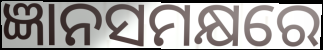
ଜ୍ଞାନସମକ୍ଷରେ